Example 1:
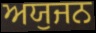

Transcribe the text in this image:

ਅਯੁਜਨ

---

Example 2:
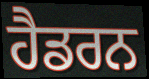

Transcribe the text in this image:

ਹੈਡਰਨ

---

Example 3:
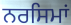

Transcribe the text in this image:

ਨਰਸਿਮਾਂ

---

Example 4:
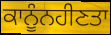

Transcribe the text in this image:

ਕਾਨੂੰਨਹੀਣਤਾ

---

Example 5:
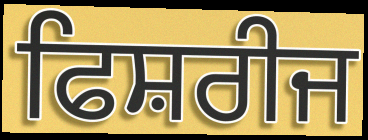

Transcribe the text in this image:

ਫਿਸ਼ਰੀਜ